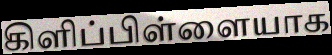
கிளிப்பிள்ளையாக